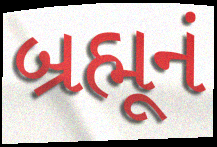
બ્રહ્મૂનં